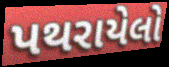
પથરાયેલો